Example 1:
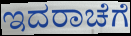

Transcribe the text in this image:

ಇದರಾಚೆಗೆ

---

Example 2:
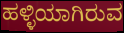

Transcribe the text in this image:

ಹಳ್ಳಿಯಾಗಿರುವ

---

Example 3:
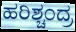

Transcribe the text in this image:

ಹರಿಶ್ಚಂದ್ರ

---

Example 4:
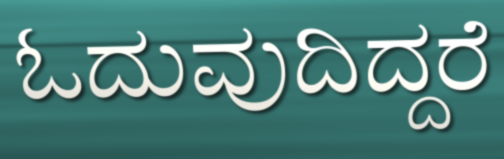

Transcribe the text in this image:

ಓದುವುದಿದ್ದರೆ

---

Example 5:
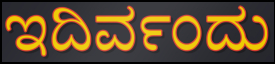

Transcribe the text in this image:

ಇದಿರ್ವಂದು